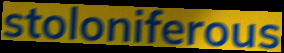
stoloniferous